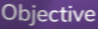
Objective